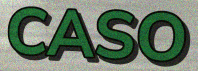
CASO